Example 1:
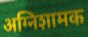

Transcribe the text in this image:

अग्निशामक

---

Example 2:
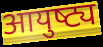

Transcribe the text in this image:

आयुष्ट्य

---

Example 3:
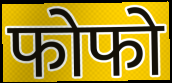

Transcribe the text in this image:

फोफो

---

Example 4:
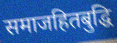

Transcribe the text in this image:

समाजहितबुद्धि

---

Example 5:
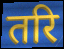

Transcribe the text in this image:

तरि